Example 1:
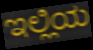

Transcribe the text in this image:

ಇಲ್ಲಿಯ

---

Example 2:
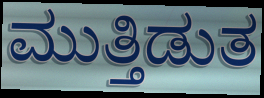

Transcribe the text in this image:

ಮುತ್ತಿಡುತ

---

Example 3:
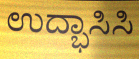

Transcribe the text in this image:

ಉದ್ಭಾಸಿಸಿ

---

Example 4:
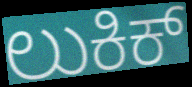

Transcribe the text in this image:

ಲುಕಿಕ್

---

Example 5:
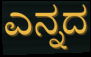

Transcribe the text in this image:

ಎನ್ನದ